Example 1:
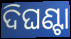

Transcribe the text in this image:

ଦିଘଣ୍ଟା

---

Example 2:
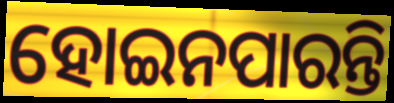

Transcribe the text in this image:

ହୋଇନପାରନ୍ତି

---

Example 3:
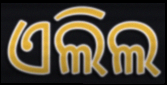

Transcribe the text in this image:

ଏଲିଲ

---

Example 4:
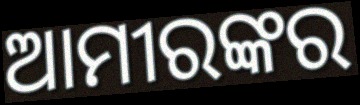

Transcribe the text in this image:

ଆମୀରଙ୍କର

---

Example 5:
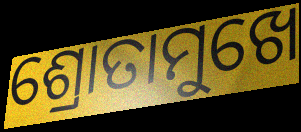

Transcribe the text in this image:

ଶ୍ରୋତାମୁଖେ